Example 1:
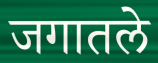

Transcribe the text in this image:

जगातले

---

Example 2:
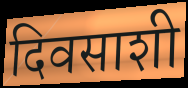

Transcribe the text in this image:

दिवसाशी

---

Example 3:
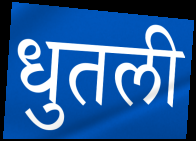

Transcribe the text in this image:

धुतली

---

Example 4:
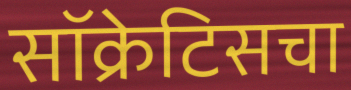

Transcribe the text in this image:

सॉक्रेटिसचा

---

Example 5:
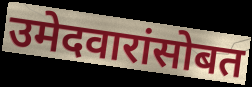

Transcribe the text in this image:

उमेदवारांसोबत